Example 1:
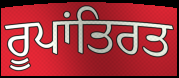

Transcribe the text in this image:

ਰੂਪਾਂਤਿਰਤ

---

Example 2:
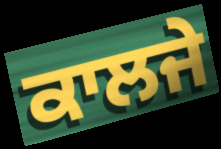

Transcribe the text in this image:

ਕਾਲਜੇ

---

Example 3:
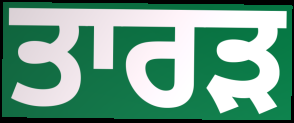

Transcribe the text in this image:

ਤਾਰੜ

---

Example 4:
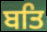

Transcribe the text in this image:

ਬਤਿ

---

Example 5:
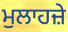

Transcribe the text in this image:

ਮੁਲਾਹਜ਼ੇ